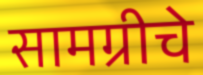
सामग्रीचे